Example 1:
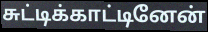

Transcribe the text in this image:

சுட்டிக்காட்டினேன்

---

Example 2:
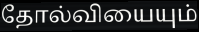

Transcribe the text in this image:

தோல்வியையும்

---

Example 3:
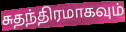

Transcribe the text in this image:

சுதந்திரமாகவும்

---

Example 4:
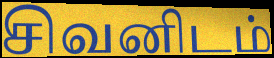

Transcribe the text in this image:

சிவனிடம்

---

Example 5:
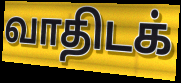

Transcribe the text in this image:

வாதிடக்